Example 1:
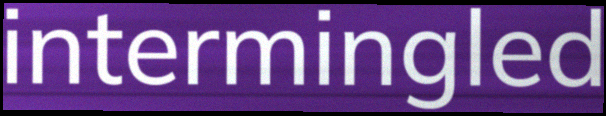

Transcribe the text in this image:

intermingled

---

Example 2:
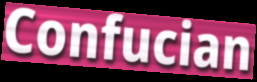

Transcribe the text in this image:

Confucian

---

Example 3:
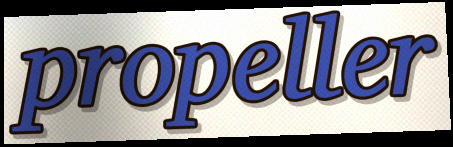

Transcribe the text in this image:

propeller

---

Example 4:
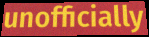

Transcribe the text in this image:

unofficially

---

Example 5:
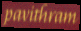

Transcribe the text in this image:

pavithram